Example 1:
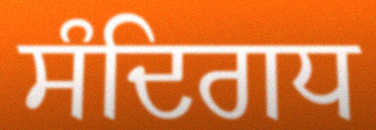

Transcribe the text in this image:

ਸੰਦਿਗਧ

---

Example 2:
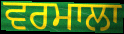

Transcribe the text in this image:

ਵਰਮਾਲਾ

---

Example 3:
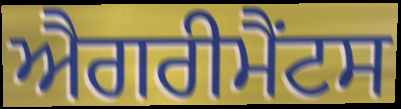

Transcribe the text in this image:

ਐਗਰੀਮੈਂਟਸ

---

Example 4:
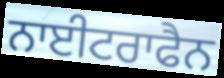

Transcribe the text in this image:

ਨਾਈਟਰਾਫੈਨ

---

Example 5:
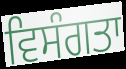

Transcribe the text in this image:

ਵਿਸੰਗਤਾ